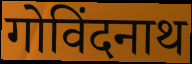
गोविंदनाथ